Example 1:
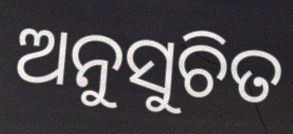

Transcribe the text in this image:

ଅନୁସୁଚିତ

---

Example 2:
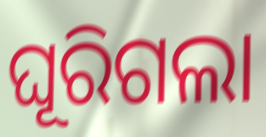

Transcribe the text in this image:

ଘୂରିଗଲା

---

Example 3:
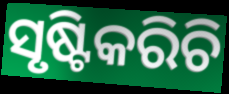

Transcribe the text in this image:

ସୃଷ୍ଟିକରିଚି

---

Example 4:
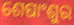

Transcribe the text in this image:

ଶେଷାଂଶୁର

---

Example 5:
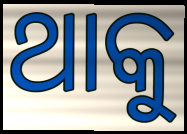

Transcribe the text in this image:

ଥାକୁ